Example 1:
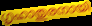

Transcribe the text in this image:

ഗൃഹാതുരനായി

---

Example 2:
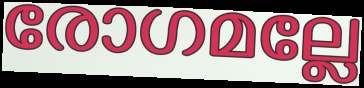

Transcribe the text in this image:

രോഗമല്ലേ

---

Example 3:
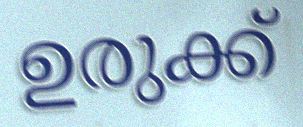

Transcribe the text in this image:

ഉരുക്ക്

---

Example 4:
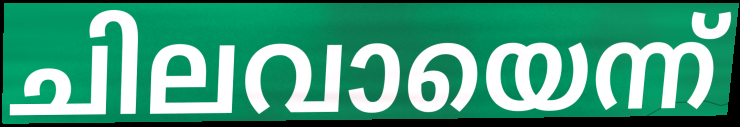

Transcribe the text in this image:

ചിലവായെന്ന്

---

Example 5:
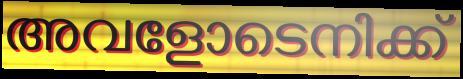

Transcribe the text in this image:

അവളോടെനിക്ക്